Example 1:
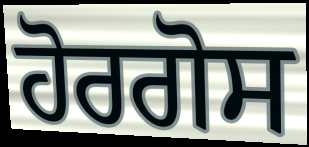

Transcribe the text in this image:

ਹੋਰਗੋਸ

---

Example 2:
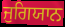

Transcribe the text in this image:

ਜੁਗਿਯਾਨ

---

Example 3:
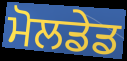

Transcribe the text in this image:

ਮੋਲਡੇਡ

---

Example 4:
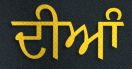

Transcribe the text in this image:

ਦੀਆੰ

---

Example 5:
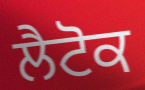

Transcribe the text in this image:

ਲੈਟੋਕ